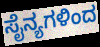
ಸೈನ್ಯಗಳಿಂದ